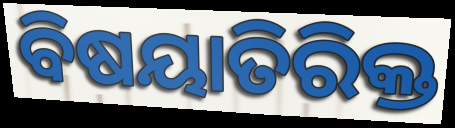
ବିଷୟାତିରିକ୍ତ